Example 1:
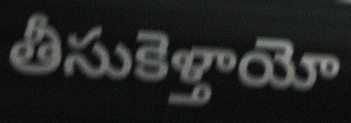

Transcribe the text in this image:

తీసుకెళ్తాయో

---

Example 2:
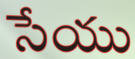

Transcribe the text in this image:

సేయు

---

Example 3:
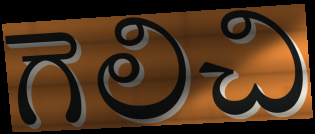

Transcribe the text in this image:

గెలిచి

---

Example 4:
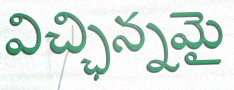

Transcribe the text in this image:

విచ్ఛిన్నమై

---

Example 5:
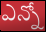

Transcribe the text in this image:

ఎన్నో